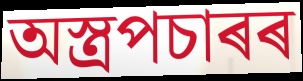
অস্ত্ৰপচাৰৰ